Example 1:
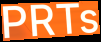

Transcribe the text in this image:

PRTs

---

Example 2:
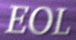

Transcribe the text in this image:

EOL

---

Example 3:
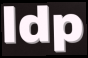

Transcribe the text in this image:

ldp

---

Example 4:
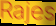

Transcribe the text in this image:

Rajes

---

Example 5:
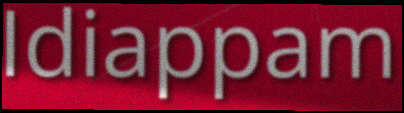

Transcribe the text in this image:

Idiappam